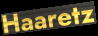
Haaretz